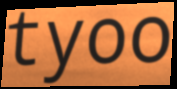
tyoo